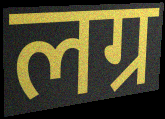
लग्र